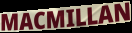
MACMILLAN